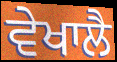
ਵੇਖਾਲੈ